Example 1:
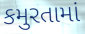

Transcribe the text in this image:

કમુરતામાં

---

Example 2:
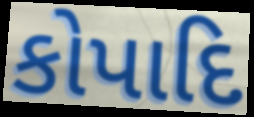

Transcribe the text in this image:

કોપાદિ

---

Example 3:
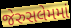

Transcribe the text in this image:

જેરુસલેમમાં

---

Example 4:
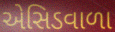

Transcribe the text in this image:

એસિડવાળા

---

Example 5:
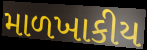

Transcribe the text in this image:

માળખાકીય